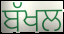
ਬੱਖਲ